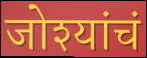
जोश्यांचं